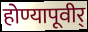
होण्यापूवीर्